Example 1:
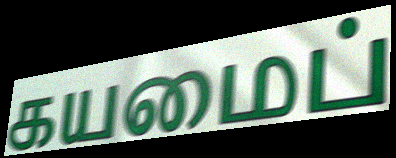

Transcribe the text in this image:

கயமைப்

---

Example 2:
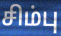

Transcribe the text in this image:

சிம்பு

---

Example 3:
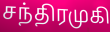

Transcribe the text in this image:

சந்திரமுகி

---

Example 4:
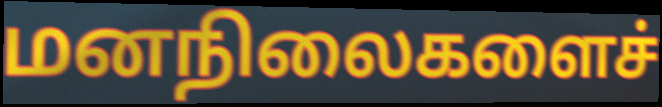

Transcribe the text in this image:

மனநிலைகளைச்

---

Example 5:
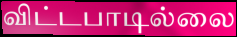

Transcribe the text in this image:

விட்டபாடில்லை